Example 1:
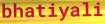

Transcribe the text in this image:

bhatiyali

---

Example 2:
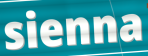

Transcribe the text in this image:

sienna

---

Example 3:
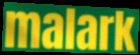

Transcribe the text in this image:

malark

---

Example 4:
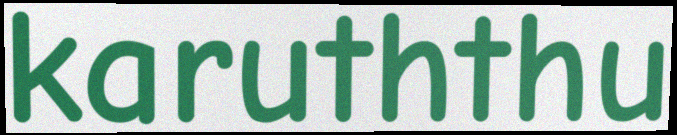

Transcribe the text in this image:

karuththu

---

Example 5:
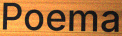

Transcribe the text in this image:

Poema